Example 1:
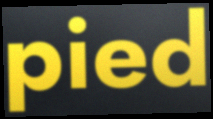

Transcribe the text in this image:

pied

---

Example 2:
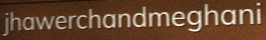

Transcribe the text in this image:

jhawerchandmeghani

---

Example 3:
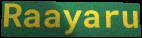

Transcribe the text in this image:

Raayaru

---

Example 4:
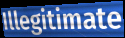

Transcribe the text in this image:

Illegitimate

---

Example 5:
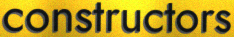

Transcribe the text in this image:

constructors